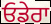
ਓਡੇਰਾ